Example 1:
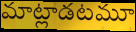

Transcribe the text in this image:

మాట్లాడటమూ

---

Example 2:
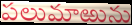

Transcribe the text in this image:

పలుమాఱును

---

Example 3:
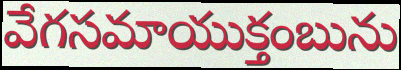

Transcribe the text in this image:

వేగసమాయుక్తంబును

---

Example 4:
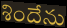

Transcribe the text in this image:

శిందేను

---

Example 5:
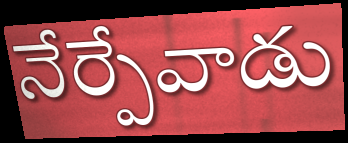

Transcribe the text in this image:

నేర్పేవాడు